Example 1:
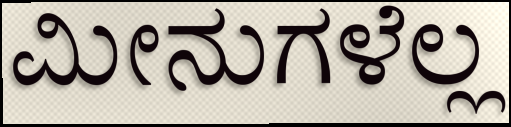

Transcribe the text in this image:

ಮೀನುಗಳೆಲ್ಲ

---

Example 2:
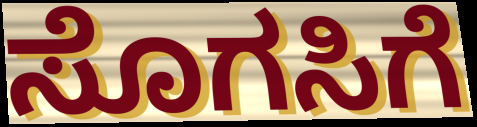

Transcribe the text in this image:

ಸೊಗಸಿಗೆ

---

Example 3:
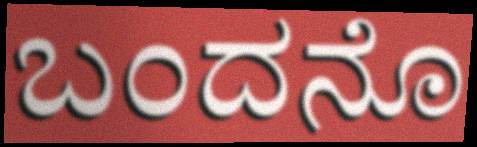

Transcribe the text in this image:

ಬಂದನೊ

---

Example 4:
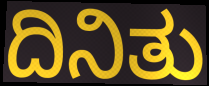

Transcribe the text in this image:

ದಿನಿತು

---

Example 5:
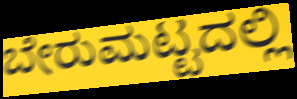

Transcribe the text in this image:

ಬೇರುಮಟ್ಟದಲ್ಲಿ